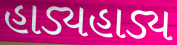
હાડ્યહાડ્ય